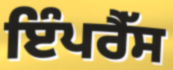
ਇੰਪਰੈੱਸ